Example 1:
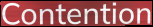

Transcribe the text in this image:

Contention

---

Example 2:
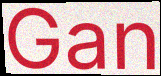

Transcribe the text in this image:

Gan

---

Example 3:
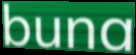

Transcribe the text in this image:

buna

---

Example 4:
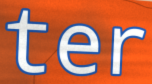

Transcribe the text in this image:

ter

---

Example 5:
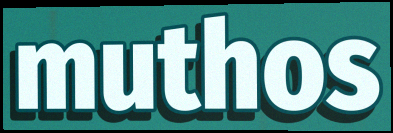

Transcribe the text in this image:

muthos